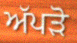
ਅੱਪੜੋ